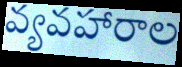
వ్యవహారాల